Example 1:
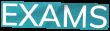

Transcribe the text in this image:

EXAMS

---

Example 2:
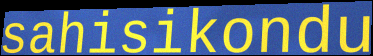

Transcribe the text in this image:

sahisikondu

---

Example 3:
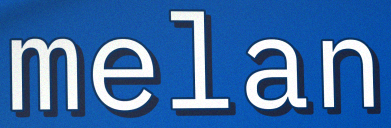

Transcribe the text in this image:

melan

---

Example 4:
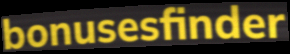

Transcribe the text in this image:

bonusesfinder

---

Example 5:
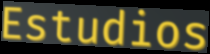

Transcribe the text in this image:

Estudios